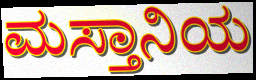
ಮಸ್ತಾನಿಯ